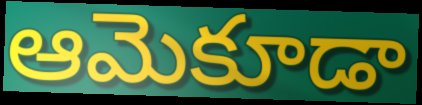
ఆమెకూడా